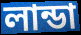
লান্ডা